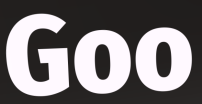
Goo